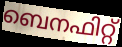
ബെനഫിറ്റ്